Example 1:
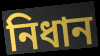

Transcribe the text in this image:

নিধান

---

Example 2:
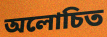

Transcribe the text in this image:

অলোচিত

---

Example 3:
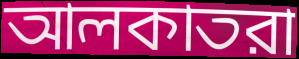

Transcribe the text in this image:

আলকাতরা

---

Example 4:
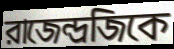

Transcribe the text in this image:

রাজেন্দ্রজিকে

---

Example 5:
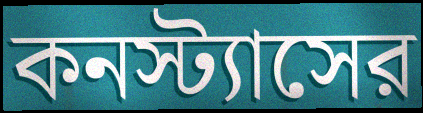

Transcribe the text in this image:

কনস্ট্যাসের